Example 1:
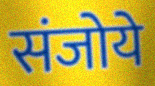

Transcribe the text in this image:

संजोये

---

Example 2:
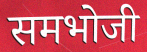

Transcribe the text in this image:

समभोजी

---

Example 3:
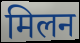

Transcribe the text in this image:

मिलन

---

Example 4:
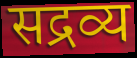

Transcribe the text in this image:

सद्रव्य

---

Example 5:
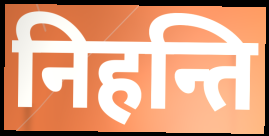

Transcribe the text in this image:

निहन्ति